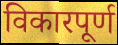
विकारपूर्ण